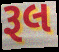
રૂલ